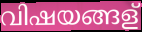
വിഷയങ്ങള്